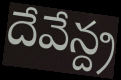
దేవేన్ద్ర